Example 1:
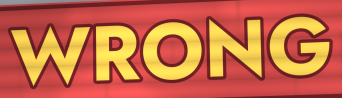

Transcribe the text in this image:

WRONG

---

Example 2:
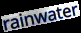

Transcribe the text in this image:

rainwater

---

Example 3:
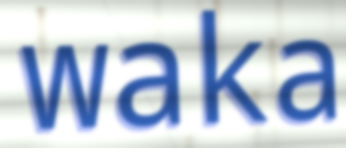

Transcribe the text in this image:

waka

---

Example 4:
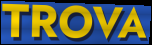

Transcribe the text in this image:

TROVA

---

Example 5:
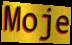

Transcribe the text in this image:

Moje